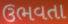
ઉભવતા